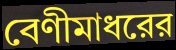
বেণীমাধরের